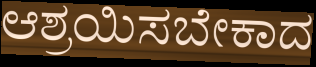
ಆಶ್ರಯಿಸಬೇಕಾದ